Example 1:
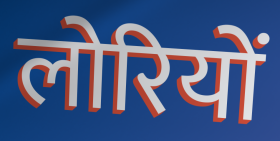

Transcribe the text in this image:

लोरियों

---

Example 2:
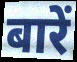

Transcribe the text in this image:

बारें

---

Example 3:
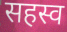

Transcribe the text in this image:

सहस्व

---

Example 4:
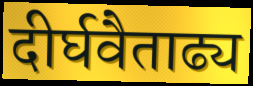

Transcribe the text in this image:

दीर्घवैताढ्य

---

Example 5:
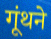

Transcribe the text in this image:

गूंथने